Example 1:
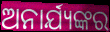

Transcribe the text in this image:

ଅନାର୍ଯ୍ୟଙ୍କର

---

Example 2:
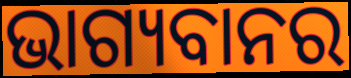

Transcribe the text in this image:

ଭାଗ୍ୟବାନର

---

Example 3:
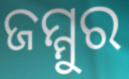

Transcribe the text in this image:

ଜମ୍ମୁର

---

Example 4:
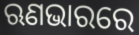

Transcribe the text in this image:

ଋଣଭାରରେ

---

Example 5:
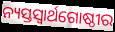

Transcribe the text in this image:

ନ୍ୟସ୍ତସ୍ୱାର୍ଥଗୋଷ୍ଠୀର